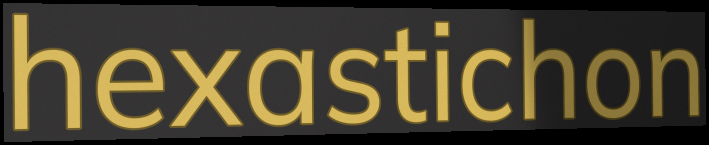
hexastichon